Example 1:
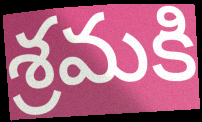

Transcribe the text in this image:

శ్రమకి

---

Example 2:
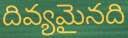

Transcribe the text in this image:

దివ్యమైనది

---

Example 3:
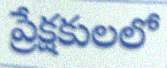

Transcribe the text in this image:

ప్రేక్షకులలో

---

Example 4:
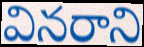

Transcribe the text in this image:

వినరాని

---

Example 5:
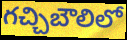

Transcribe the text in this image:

గచ్చిబౌలిలో